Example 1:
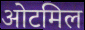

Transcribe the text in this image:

ओटमिल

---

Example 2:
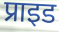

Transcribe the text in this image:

प्राइड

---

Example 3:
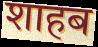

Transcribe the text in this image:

शाहब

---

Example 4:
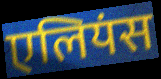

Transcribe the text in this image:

एलियंस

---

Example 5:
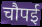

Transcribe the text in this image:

चौपई